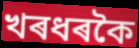
খৰধৰকৈ